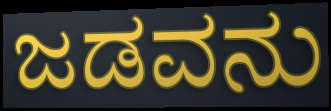
ಜಡವನು